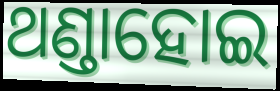
ଥଣ୍ଡାହୋଇ